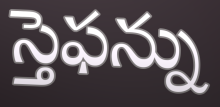
స్తెఫన్ను